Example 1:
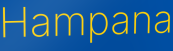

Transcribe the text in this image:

Hampana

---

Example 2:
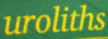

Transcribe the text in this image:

uroliths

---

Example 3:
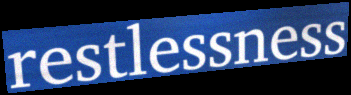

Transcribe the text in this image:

restlessness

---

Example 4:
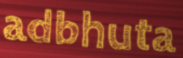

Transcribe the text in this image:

adbhuta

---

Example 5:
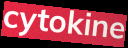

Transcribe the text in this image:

cytokine